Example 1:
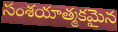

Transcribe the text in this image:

సంశయాత్మకమైన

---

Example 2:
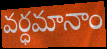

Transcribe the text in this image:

వర్ధమానాం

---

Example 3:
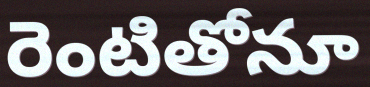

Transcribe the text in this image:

రెంటితోనూ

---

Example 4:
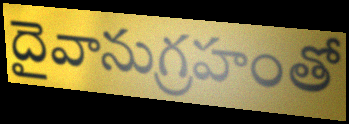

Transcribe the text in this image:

దైవానుగ్రహంతో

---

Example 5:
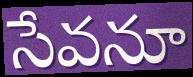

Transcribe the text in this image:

సేవనూ